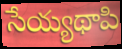
సేయ్యథాపి